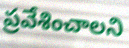
ప్రవేశించాలని